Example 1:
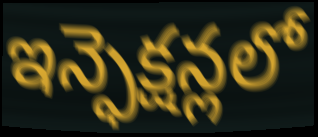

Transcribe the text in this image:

ఇన్ఫెక్షన్లలో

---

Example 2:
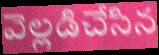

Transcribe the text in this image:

వెల్లడిచేసిన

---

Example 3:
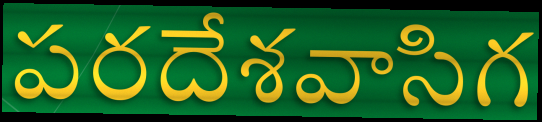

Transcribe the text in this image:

పరదేశవాసిగ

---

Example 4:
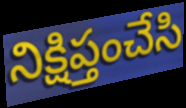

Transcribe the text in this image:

నిక్షిప్తంచేసి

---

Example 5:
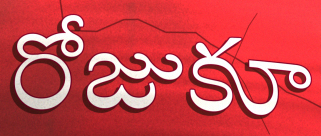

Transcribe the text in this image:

రోజుకూ